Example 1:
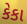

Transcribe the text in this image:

કેકા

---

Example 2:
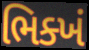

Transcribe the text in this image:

ભિક્ખં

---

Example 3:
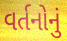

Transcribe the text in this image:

વર્તનોનું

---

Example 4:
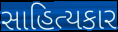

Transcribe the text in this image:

સાહિત્યકાર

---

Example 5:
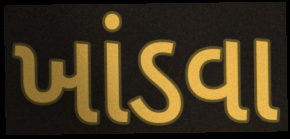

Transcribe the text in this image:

ખાંડવા